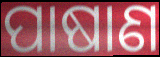
ପାଷାଣ